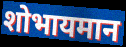
शोभायमान